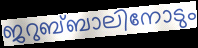
ജറുബ്‌ബാലിനോടും